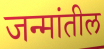
जन्मांतील